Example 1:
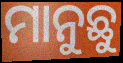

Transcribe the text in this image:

ମାନୁଛୁ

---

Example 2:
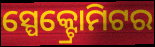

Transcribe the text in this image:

ସ୍ପେକ୍ଟ୍ରୋମିଟର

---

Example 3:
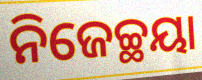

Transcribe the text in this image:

ନିଜେଚ୍ଛୟା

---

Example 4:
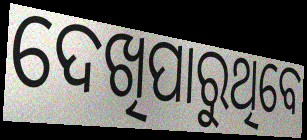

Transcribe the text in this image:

ଦେଖିପାରୁଥିବେ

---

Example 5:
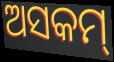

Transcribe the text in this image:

ଅସକମ୍